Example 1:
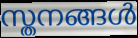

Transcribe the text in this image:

സ്തനങ്ങൾ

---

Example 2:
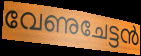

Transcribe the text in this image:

വേണുചേട്ടൻ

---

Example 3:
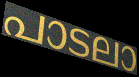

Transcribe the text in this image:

പാടലാ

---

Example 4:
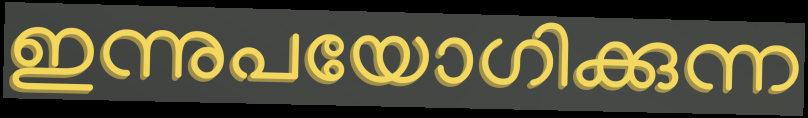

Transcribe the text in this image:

ഇന്നുപയോഗിക്കുന്ന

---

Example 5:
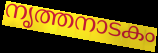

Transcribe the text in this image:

നൃത്തനാടകം